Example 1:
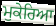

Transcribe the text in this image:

ਮੁਕੇਰਿਆ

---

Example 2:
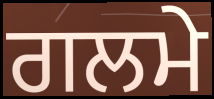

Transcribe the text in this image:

ਗਲਮੇ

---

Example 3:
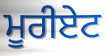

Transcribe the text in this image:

ਮੂਰੀਏਟ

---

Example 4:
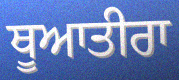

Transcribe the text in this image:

ਥੂਆਤੀਰਾ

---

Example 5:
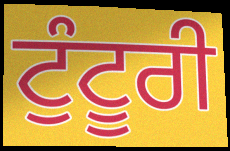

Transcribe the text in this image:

ਟੁੰਟੂਰੀ